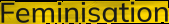
Feminisation